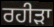
ਰਹੀੜਾ